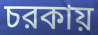
চরকায়